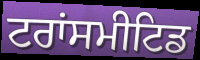
ਟਰਾਂਸਮੀਟਿਡ